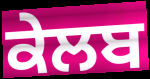
ਕੇਲਬ